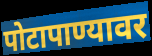
पोटापाण्यावर